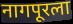
नागपूरला